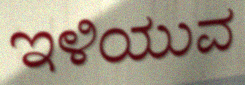
ಇಳಿಯುವ